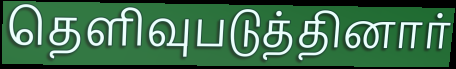
தெளிவுபடுத்தினார்